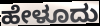
ಹೇಳೂದು